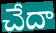
చేదా